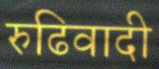
रुढिवादी